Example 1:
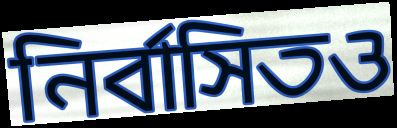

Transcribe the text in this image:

নির্বাসিতও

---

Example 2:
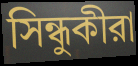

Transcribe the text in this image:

সিন্ধুকীরা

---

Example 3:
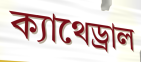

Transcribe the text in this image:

ক্যাথেড্রাল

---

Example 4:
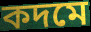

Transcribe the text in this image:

কদমে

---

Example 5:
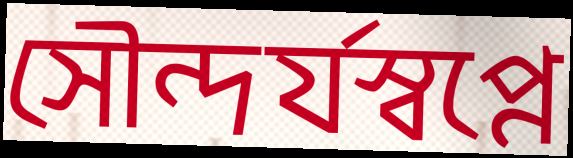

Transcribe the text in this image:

সৌন্দর্যস্বপ্নে